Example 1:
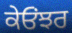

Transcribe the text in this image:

ਕੇਓਂਝਰ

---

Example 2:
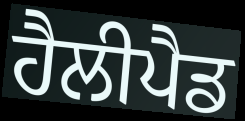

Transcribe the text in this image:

ਹੈਲੀਪੈਡ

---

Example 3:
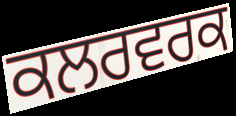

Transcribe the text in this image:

ਕਲਰਵਰਕ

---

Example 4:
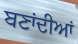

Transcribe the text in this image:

ਬਣਾਂਦੀਆਂ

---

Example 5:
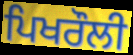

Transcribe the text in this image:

ਪਿਖਰੌਲੀ